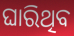
ଘାରିଥିବ